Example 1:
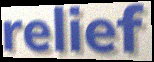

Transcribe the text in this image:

relief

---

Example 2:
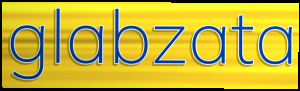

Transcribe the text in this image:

glabzata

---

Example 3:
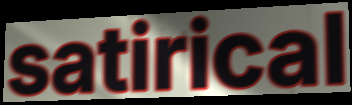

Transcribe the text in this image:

satirical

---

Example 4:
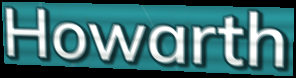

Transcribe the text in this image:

Howarth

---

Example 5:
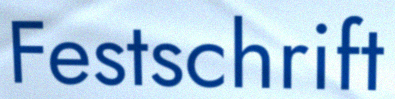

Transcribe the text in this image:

Festschrift